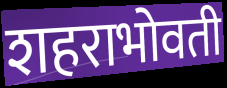
शहराभोवती